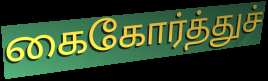
கைகோர்த்துச்